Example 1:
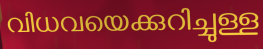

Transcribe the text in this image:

വിധവയെക്കുറിച്ചുള്ള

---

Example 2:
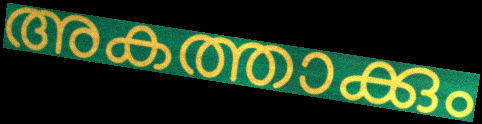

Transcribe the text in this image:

അകത്താക്കും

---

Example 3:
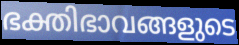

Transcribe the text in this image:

ഭക്തിഭാവങ്ങളുടെ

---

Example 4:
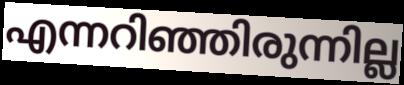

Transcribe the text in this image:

എന്നറിഞ്ഞിരുന്നില്ല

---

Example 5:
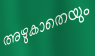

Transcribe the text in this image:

അഴുകാതെയും